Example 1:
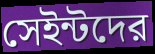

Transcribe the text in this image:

সেইন্টদের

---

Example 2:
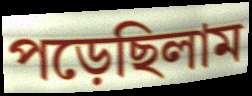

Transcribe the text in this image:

পড়েছিলাম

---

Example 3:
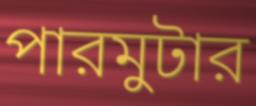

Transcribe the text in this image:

পারমুটার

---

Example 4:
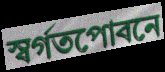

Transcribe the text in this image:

স্বর্গতপোবনে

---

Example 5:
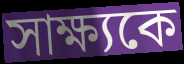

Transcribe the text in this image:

সাক্ষ্যকে